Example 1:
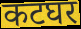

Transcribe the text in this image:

कटघर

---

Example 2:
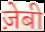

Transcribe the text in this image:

ज़ेबी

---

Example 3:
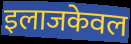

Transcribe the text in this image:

इलाजकेवल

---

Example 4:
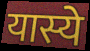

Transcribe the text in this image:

यास्ये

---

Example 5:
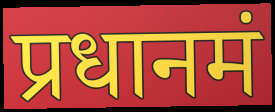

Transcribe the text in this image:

प्रधानमं